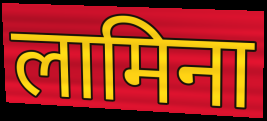
लामिना